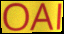
OAI